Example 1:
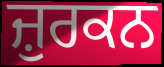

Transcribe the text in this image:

ਜ਼ੁਰਕਨ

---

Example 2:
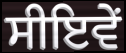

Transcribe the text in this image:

ਸੀਇਵੇਂ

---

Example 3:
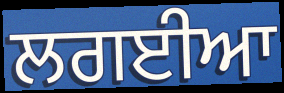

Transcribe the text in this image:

ਲਗਈਆ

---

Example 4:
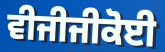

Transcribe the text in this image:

ਵੀਜੀਜੀਕੋਈ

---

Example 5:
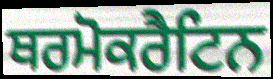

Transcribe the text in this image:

ਥਰਮੋਕਰੈਟਿਨ